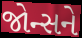
જોન્સને